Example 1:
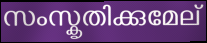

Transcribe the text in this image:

സംസ്കൃതിക്കുമേല്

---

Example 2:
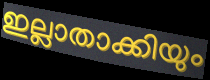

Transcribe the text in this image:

ഇല്ലാതാക്കിയും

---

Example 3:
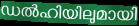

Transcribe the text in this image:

ഡൽഹിയിലുമായി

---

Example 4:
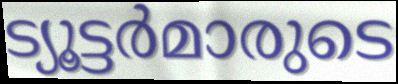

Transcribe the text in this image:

ട്യൂട്ടർമാരുടെ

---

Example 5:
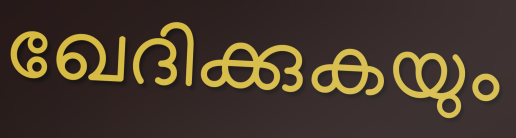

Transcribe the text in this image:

ഖേദിക്കുകയും